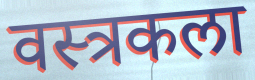
वस्त्रकला